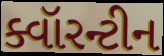
ક્વૉરન્ટીન